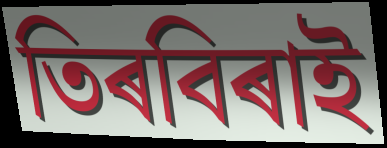
তিৰবিৰাই